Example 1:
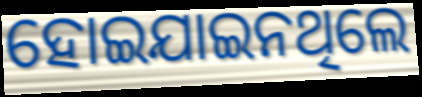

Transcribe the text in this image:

ହୋଇଯାଇନଥିଲେ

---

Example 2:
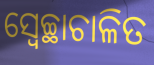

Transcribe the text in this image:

ସ୍ୱେଚ୍ଛାଚାଳିତ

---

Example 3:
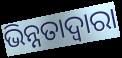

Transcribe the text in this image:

ଭିନ୍ନତାଦ୍ୱାରା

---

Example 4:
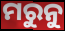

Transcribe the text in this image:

ମରୁନୁ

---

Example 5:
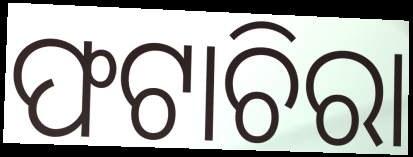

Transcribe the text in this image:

ଫଟାଚିରା